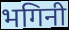
भगिनी